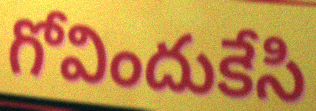
గోవిందుకేసి